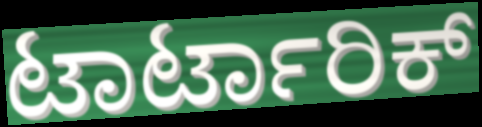
ಟಾರ್ಟಾರಿಕ್